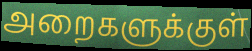
அறைகளுக்குள்